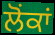
ਲੋਂਕਾਂ